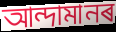
আন্দামানৰ